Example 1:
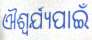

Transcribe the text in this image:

ଐଶ୍ୱର୍ଯ୍ୟପାଇଁ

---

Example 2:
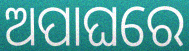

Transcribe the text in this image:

ଅପାଘରେ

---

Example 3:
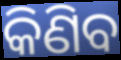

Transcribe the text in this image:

କିଣିବ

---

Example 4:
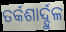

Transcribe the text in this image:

ତର୍କଶାର୍ଦ୍ଦୁଳ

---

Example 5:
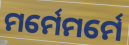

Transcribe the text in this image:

ମର୍ମେମର୍ମେ